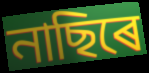
নাছিৰে